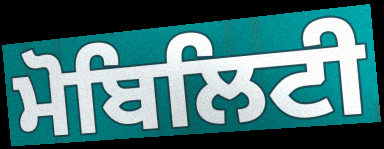
ਮੋਬਿਲਿਟੀ